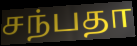
சந்பதா